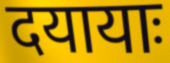
दयायाः